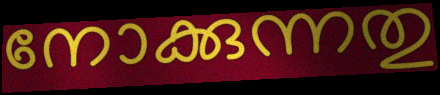
നോക്കുന്നതു